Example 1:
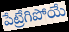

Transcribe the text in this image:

పేట్రేగిపోయే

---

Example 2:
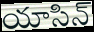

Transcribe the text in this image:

యాసిన్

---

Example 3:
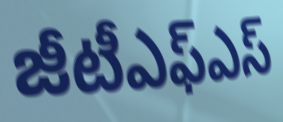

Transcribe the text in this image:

జీటీఎఫ్ఎస్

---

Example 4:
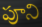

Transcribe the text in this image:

పూని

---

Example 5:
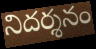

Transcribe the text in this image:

నిదర్శనం